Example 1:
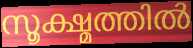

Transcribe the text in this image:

സൂക്ഷ്മത്തിൽ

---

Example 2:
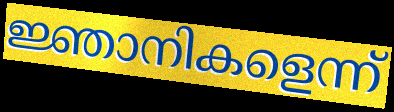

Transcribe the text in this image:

ജ്ഞാനികളെന്ന്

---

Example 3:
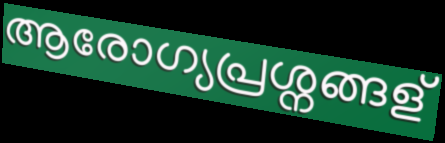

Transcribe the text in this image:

ആരോഗ്യപ്രശ്നങ്ങള്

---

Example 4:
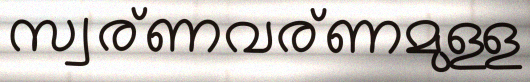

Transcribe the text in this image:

സ്വര്ണവര്ണമുള്ള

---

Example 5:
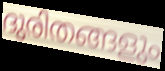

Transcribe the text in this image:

ദുരിതങ്ങളും